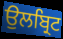
ਉਲਬ੍ਰਿਟ